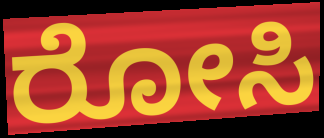
ರೋಸಿ